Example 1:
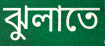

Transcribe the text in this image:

ঝুলাতে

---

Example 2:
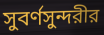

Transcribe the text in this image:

সুবর্ণসুন্দরীর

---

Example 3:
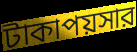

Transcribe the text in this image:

টাকাপয়সার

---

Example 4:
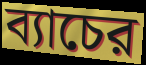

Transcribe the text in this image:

ব্যাচের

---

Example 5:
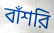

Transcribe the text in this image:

বাঁশরি